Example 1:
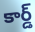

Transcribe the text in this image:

కార్డ్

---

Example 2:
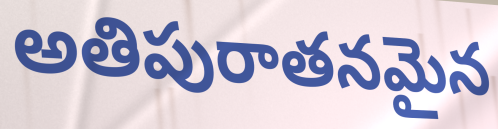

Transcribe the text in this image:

అతిపురాతనమైన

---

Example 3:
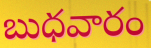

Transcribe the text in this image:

బుధవారం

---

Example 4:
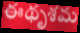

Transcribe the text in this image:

ఈథృశమ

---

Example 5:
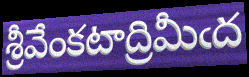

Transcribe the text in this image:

శ్రీవేంకటాద్రిమీఁద